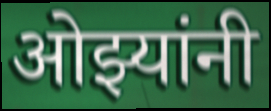
ओझ्यांनी